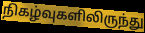
நிகழ்வுகளிலிருந்து